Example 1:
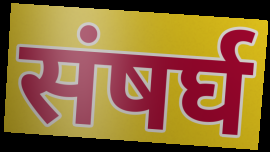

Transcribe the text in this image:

संषर्घ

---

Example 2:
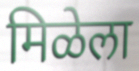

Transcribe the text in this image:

मिळेला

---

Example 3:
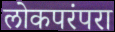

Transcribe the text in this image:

लोकपरंपरा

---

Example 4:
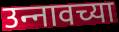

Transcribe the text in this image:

उन्नावच्या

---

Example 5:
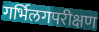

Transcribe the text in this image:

गर्भिलगपरीक्षण